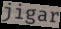
jigar